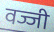
वज्जी